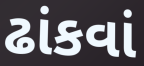
ઢાંકવાં